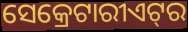
ସେକ୍ରେଟାରୀଏଟ୍‍ର